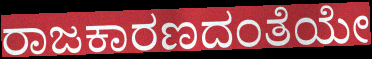
ರಾಜಕಾರಣದಂತೆಯೇ